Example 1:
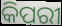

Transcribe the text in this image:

କିପରୀ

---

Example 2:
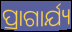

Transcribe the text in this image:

ପ୍ରାଗାର୍ଯ୍ୟ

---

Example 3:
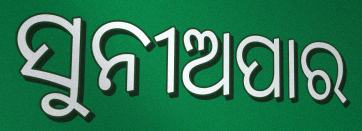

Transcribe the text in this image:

ସୁନୀଅପାର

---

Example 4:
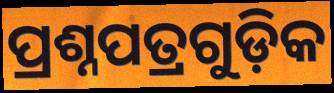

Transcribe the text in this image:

ପ୍ରଶ୍ନପତ୍ରଗୁଡ଼ିକ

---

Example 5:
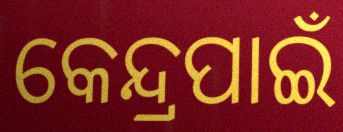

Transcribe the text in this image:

କେନ୍ଦ୍ରପାଇଁ